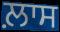
ਲ਼ਾਸ